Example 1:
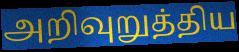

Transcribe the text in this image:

அறிவுறுத்திய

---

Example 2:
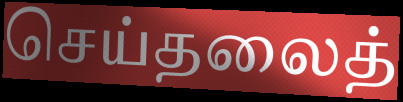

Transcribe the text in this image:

செய்தலைத்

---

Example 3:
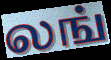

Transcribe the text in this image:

லங்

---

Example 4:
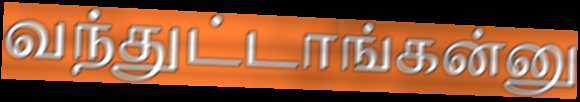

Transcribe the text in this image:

வந்துட்டாங்கன்னு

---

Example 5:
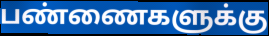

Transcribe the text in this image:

பண்ணைகளுக்கு